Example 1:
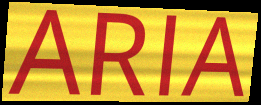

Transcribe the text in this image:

ARIA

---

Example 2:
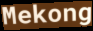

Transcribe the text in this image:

Mekong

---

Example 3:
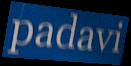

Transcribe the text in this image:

padavi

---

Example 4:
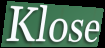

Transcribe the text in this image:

Klose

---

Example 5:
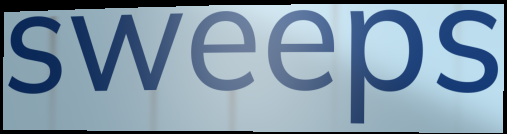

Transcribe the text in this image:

sweeps